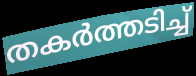
തകർത്തടിച്ച്